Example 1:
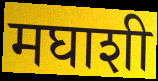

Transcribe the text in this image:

मघाशी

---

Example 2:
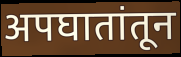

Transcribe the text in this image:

अपघातांतून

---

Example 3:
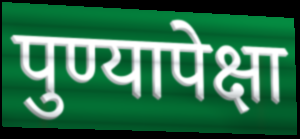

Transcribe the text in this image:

पुण्यापेक्षा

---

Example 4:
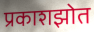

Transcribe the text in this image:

प्रकाशझोत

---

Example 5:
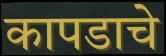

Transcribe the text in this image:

कापडाचे